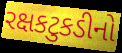
રક્ષકટુકડીનો